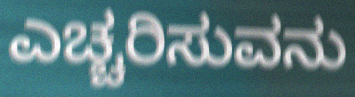
ಎಚ್ಚರಿಸುವನು